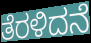
ತೆರಳಿದನೆ